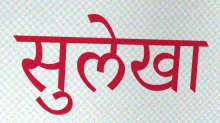
सुलेखा